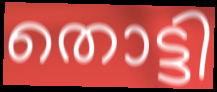
തൊട്ടി